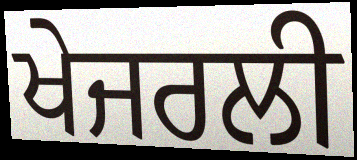
ਖੇਜਰਲੀ